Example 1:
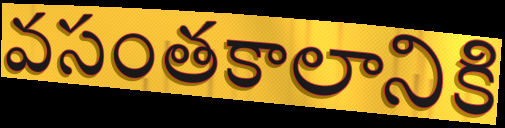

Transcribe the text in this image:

వసంతకాలానికి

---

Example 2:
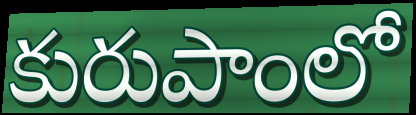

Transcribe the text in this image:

కురుపాంలో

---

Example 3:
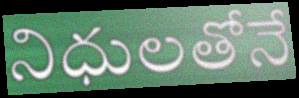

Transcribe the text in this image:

నిధులతోనే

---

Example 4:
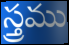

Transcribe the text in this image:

స్త్రము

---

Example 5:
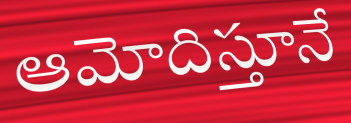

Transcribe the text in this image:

ఆమోదిస్తూనే